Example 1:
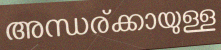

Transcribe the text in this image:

അന്ധര്ക്കായുള്ള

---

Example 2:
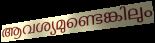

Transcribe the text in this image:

ആവശ്യമുണ്ടെങ്കിലും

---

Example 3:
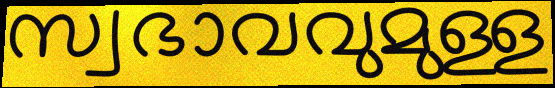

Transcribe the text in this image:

സ്വഭാവവുമുള്ള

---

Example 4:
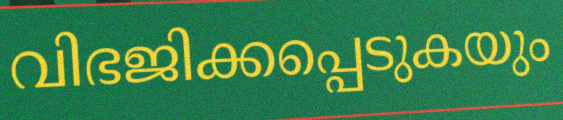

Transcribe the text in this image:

വിഭജിക്കപ്പെടുകയും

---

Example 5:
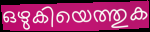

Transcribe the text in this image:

ഒഴുകിയെത്തുക